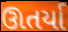
ઊતર્યા